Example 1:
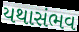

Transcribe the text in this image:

યથાસંભવ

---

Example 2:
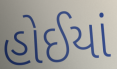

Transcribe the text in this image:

હોઈયાં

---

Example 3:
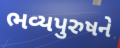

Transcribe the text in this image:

ભવ્યપુરુષને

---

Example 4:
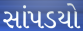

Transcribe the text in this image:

સાંપડયો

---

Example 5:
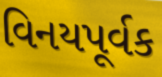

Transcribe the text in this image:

વિનયપૂર્વક